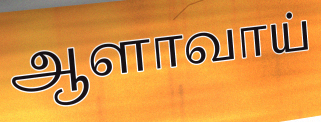
ஆளாவாய்